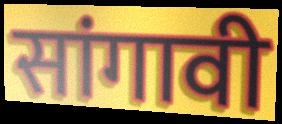
सांगावी